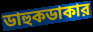
ডাহুকডাকার